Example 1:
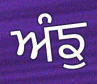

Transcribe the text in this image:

ਅੰਙੁ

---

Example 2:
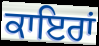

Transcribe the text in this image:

ਕਾਇਰਾਂ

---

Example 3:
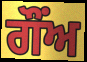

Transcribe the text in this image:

ਗੌਂਅ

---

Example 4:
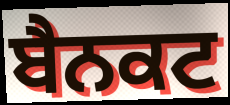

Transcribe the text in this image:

ਬੈਨਕਟ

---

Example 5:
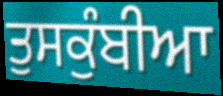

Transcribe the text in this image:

ਤੁਸਕੁੰਬੀਆ